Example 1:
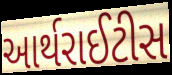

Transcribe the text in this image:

આર્થરાઈટીસ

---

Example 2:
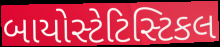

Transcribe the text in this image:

બાયોસ્ટેટિસ્ટિકલ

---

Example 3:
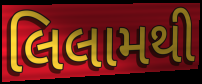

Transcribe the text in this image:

લિલામથી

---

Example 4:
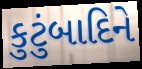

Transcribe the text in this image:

કુટુંબાદિને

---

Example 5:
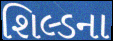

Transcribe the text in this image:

શિલ્ડના